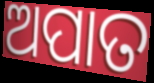
ଅପାତ